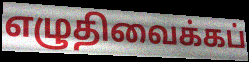
எழுதிவைக்கப்